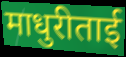
माधुरीताई